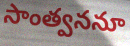
సాంత్వననూ